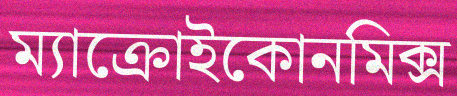
ম্যাক্রোইকোনমিক্স